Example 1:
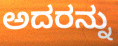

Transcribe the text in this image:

ಅದರನ್ನು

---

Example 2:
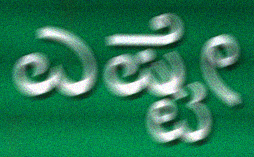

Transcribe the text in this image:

ಎಷ್ಟೇ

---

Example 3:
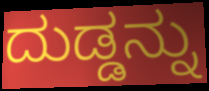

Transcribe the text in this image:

ದುಡ್ಡನ್ನು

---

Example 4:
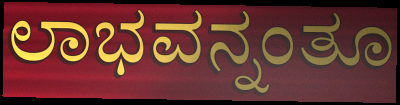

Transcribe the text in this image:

ಲಾಭವನ್ನಂತೂ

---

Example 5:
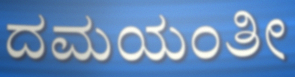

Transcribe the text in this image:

ದಮಯಂತೀ